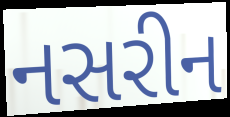
નસરીન